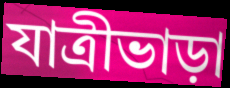
যাত্রীভাড়া